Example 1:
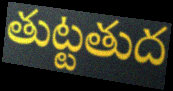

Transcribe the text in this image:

తుట్టతుద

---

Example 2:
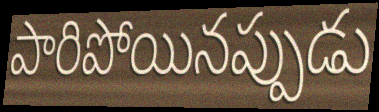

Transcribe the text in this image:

పారిపోయినప్పుడు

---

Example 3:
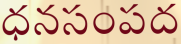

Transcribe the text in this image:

ధనసంపద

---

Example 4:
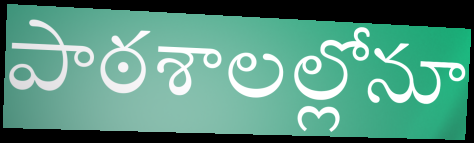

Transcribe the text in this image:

పాఠశాలల్లోనూ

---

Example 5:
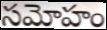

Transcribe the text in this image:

సమోహం